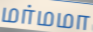
மர்மமா